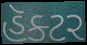
હૅક્ટર